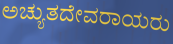
ಅಚ್ಯುತದೇವರಾಯರು